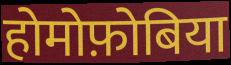
होमोफ़ोबिया